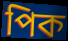
পিক